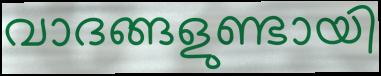
വാദങ്ങളുണ്ടായി